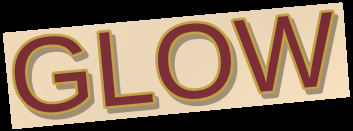
GLOW